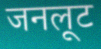
जनलूट